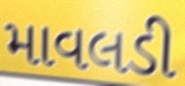
માવલડી